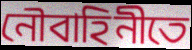
নৌবাহিনীতে